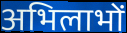
अभिलाभों